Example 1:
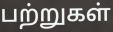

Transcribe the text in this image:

பற்றுகள்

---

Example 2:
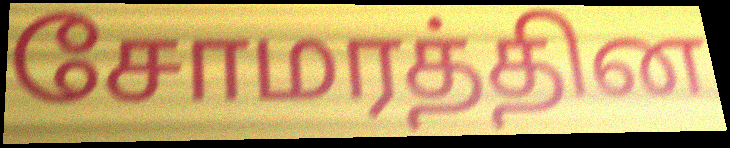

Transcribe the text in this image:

சோமரத்தின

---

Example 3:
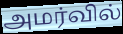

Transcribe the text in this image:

அமர்வில்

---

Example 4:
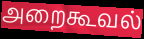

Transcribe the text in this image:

அறைகூவல்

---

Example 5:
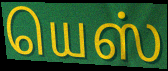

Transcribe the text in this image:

யெஸ்